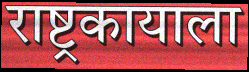
राष्ट्रकायाला